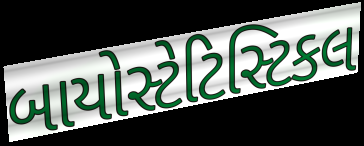
બાયોસ્ટેટિસ્ટિકલ